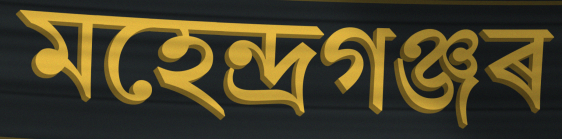
মহেন্দ্ৰগঞ্জৰ